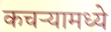
कचऱ्यामध्ये